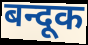
बन्दूक